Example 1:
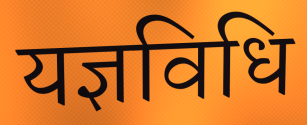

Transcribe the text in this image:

यज्ञविधि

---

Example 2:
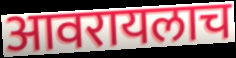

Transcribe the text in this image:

आवरायलाच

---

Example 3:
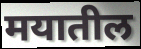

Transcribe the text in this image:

मयातील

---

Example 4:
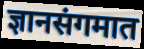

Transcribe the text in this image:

ज्ञानसंगमात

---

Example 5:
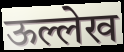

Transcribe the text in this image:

ऊल्लेख